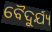
ବୈଦୁର୍ଯ୍ୟ